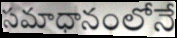
సమాధానంలోనే